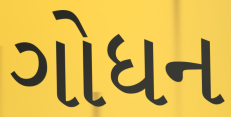
ગોધન